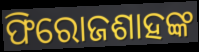
ଫିରୋଜଶାହଙ୍କ